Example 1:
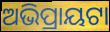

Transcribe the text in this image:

ଅଭିପ୍ରାୟଟା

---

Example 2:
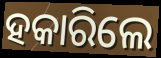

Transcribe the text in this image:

ହକାରିଲେ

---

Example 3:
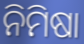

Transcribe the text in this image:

ନିମିଷା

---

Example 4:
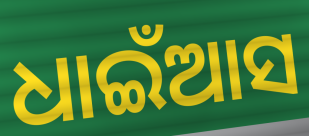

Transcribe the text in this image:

ଧାଇଁଆସ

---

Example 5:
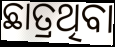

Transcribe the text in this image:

ଛାତ୍ରଥିବା